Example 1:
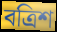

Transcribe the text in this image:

বত্ৰিশ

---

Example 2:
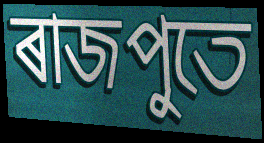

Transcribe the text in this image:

ৰাজপুতে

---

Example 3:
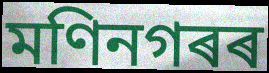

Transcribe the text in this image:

মণিনগৰৰ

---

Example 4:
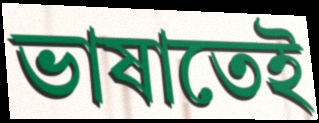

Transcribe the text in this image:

ভাষাতেই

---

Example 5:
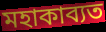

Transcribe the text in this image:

মহাকাব্যত